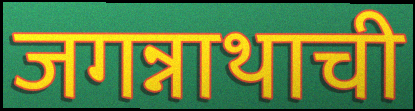
जगन्नाथाची